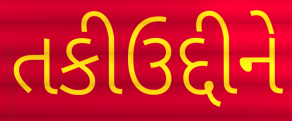
તકીઉદ્દીને